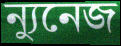
ন্যুনেজ